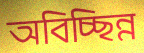
অবিচ্ছিন্ন